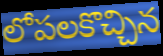
లోపలకొచ్చిన